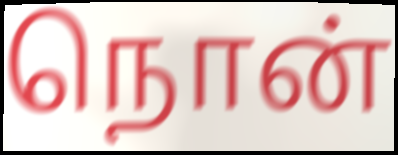
நொன்